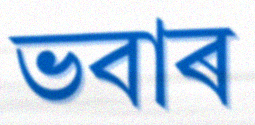
ভবাৰ